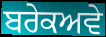
ਬਰੇਕਅਵੇ